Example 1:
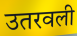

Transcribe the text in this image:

उतरवली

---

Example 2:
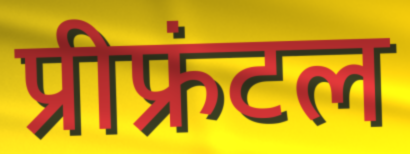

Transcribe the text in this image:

प्रीफ्रंटल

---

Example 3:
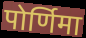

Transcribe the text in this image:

पोर्णिमा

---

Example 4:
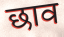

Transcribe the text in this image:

छाव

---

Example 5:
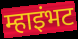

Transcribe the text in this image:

म्हाइंभट